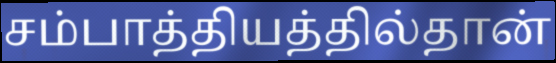
சம்பாத்தியத்தில்தான்